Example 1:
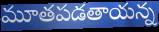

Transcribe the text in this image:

మూతపడతాయన్న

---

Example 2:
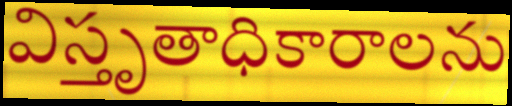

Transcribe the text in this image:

విస్తృతాధికారాలను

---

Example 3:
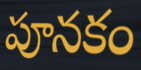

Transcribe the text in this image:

పూనకం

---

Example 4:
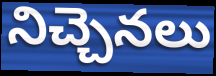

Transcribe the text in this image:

నిచ్చెనలు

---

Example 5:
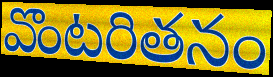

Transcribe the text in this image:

వొంటరితనం